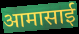
आमासाई